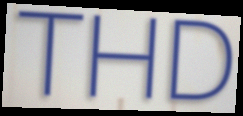
THD